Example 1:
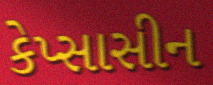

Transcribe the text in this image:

કેપ્સાસીન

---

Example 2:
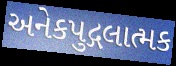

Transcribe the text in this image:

અનેકપુદ્ગલાત્મક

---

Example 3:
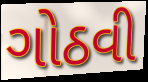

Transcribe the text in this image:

ગોઠવી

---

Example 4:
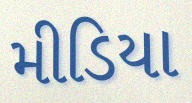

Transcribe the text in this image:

મીડિયા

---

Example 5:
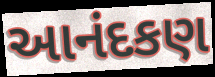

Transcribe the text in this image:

આનંદકણ